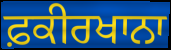
ਫ਼ਕੀਰਖਾਨਾ